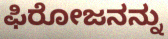
ಫಿರೋಜನನ್ನು